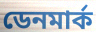
ডেনমার্ক